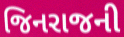
જિનરાજની